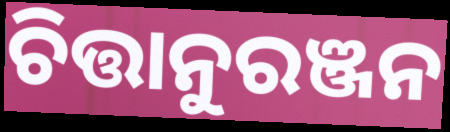
ଚିତ୍ତାନୁରଞ୍ଜନ